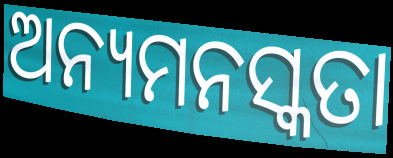
ଅନ୍ୟମନସ୍କତା